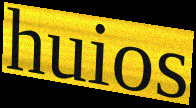
huios